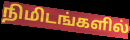
நிமிடங்களில்